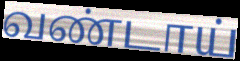
வண்டாய்